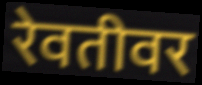
रेवतीवर